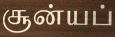
சூன்யப்